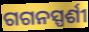
ଗଗନସ୍ପର୍ଶୀ